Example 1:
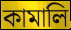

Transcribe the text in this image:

কামালি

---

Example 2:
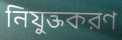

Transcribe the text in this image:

নিযুক্তকরণ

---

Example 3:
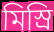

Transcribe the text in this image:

মিস্রি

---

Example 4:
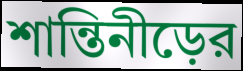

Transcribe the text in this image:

শান্তিনীড়ের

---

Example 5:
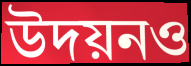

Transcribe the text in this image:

উদয়নও